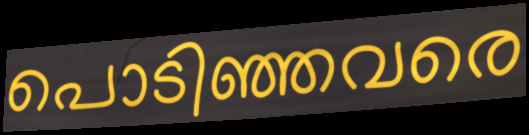
പൊടിഞ്ഞവരെ